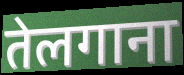
तेलगाना